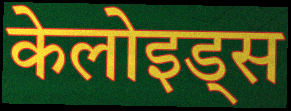
केलोइड्स